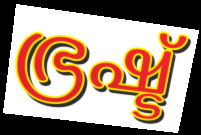
ഭ്രഷ്ട്